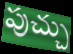
పుచ్చు